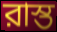
রাস্ত